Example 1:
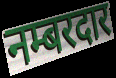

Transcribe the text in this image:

नम्बरदार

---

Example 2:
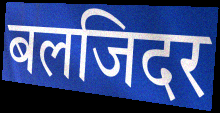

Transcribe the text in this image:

बलजिदर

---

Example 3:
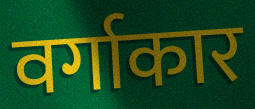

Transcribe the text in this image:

वर्गाकार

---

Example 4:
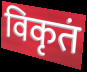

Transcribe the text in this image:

विकृतं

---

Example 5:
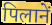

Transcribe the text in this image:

पिलानें